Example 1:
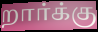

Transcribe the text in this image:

றார்க்கு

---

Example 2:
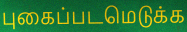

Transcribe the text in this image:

புகைப்படமெடுக்க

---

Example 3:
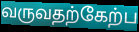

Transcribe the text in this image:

வருவதற்கேற்ப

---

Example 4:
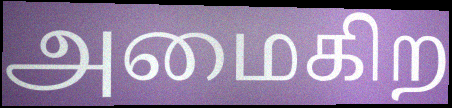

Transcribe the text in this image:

அமைகிற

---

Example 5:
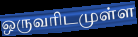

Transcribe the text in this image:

ஒருவரிடமுள்ள